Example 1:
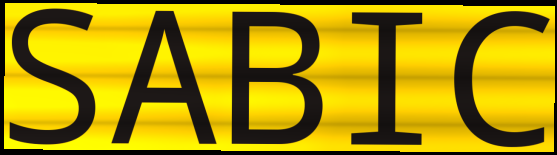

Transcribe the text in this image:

SABIC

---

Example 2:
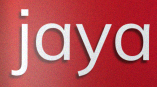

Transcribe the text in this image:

jaya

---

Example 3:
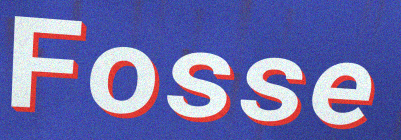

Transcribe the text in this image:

Fosse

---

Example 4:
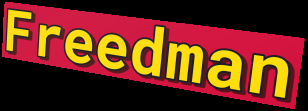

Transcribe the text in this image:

Freedman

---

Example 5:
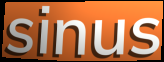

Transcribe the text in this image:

sinus